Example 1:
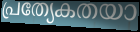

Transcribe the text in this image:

പ്രത്യേകതയാ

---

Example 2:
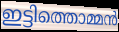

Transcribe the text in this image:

ഇട്ടിത്തൊമ്മൻ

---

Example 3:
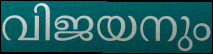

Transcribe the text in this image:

വിജയനും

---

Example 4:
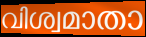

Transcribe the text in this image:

വിശ്വമാതാ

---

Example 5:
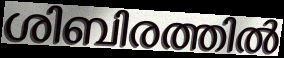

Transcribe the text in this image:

ശിബിരത്തിൽ